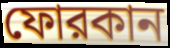
ফোরকান